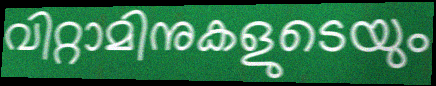
വിറ്റാമിനുകളുടെയും